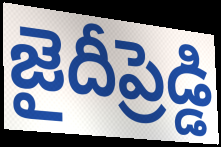
జైదీప్రెడ్డి